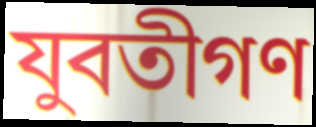
যুবতীগণ